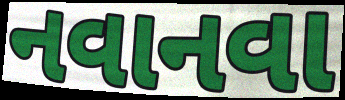
નવાનવા